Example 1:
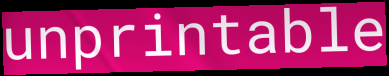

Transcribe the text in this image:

unprintable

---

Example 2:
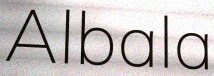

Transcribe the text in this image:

Albala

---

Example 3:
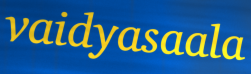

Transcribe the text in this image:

vaidyasaala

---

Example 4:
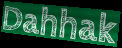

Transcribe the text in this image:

Dahhak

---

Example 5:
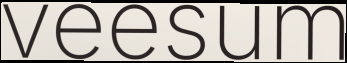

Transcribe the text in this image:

veesum